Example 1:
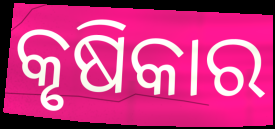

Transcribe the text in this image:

କୃଷିକାର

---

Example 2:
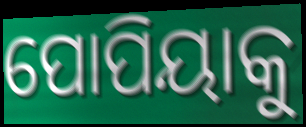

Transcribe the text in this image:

ପୋପିୟାକୁ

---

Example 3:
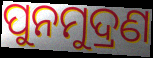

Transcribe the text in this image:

ପୁନମୁଦ୍ରଣ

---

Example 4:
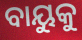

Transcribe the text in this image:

ବାୟୁକୁ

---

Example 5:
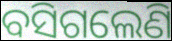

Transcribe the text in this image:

ବସିଗଲେଣି